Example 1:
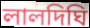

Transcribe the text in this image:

লালদিঘি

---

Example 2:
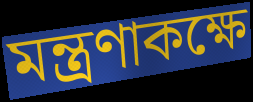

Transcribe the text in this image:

মন্ত্রণাকক্ষে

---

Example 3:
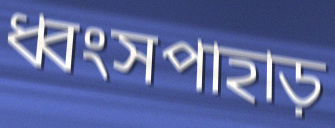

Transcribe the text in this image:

ধ্বংসপাহাড়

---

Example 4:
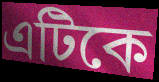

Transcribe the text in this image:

এটিকে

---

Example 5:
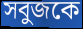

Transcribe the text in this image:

সবুজকে